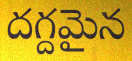
దగ్దమైన